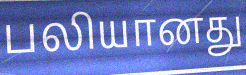
பலியானது